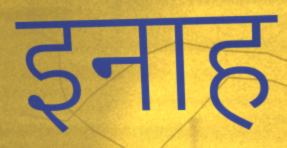
इनाह